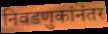
निवडणुकांनंतर